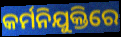
କର୍ମନିଯୁକ୍ତିରେ